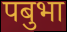
पबुभा